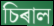
চিৰাল